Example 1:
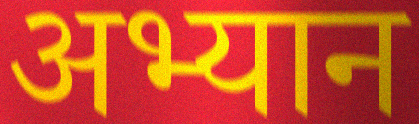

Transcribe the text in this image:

अभ्यान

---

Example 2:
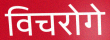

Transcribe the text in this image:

विचरोगे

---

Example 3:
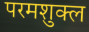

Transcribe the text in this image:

परमशुक्ल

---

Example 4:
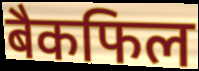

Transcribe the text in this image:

बैकफिल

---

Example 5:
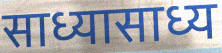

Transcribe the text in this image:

साध्यासाध्य